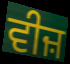
ਵੀਜ਼